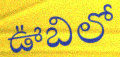
ఊబిలో